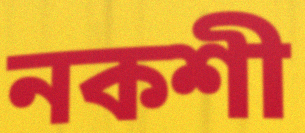
নকশী